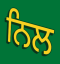
ਨਿਲ